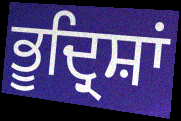
ਭੂਦ੍ਰਿਸ਼ਾਂ